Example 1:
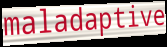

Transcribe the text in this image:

maladaptive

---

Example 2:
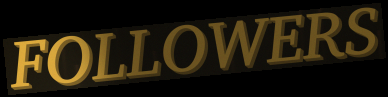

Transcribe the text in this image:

FOLLOWERS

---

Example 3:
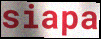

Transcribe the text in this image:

siapa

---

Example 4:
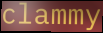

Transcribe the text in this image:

clammy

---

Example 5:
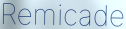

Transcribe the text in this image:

Remicade